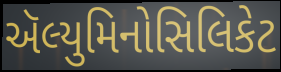
ઍલ્યુમિનોસિલિકેટ